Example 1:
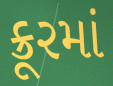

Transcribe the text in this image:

ક્રૂરમાં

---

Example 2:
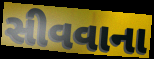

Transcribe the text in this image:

સીવવાના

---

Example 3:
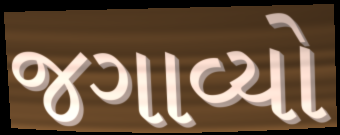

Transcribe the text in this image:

જગાવ્યો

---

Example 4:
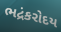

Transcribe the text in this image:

ભદ્રંકરોદય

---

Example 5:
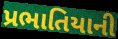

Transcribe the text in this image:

પ્રભાતિયાની